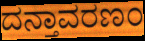
ದನ್ತಾವರಣಂ